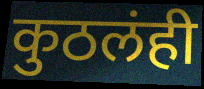
कुठलंही